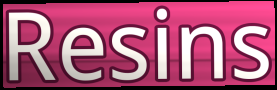
Resins